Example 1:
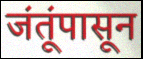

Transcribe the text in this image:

जंतूंपासून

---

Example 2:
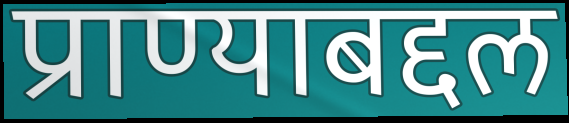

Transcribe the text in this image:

प्राण्याबद्दल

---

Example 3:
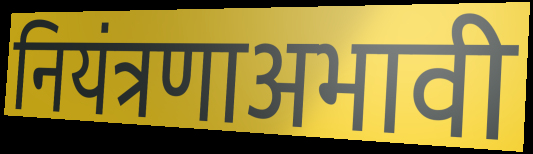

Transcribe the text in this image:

नियंत्रणाअभावी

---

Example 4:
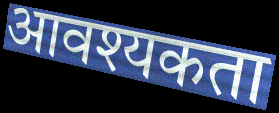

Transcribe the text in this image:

आवश्‍यकता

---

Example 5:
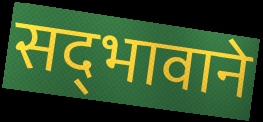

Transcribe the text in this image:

सद्भावाने